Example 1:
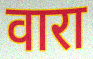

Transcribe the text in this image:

वारा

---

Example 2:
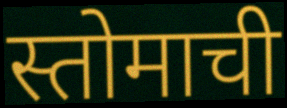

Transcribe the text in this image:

स्तोमाची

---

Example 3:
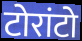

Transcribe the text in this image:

टोरांटो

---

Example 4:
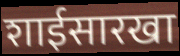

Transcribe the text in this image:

शाईसारखा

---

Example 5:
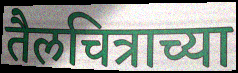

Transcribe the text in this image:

तैलचित्राच्या